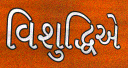
વિશુદ્ધિએ